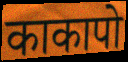
काकापो